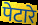
पेटारे